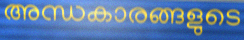
അന്ധകാരങ്ങളുടെ